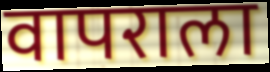
वापराला